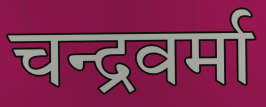
चन्द्रवर्मा